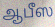
ஆபீஸ